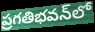
ప్రగతిభవన్‌లో